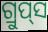
ଗ୍ରୁପ୍‌ସ